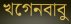
খগেনবাবু